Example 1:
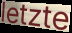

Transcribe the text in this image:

letzte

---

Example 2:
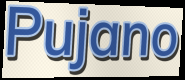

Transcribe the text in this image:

Pujano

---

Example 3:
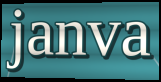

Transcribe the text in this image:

janva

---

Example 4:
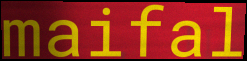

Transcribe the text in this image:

maifal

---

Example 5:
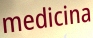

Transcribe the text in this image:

medicina